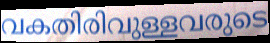
വകതിരിവുള്ളവരുടെ